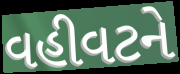
વહીવટને